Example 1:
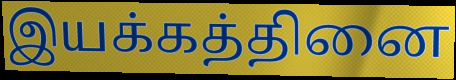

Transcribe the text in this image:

இயக்கத்தினை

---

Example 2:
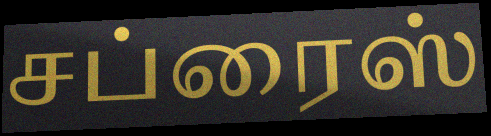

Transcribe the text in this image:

சப்ரைஸ்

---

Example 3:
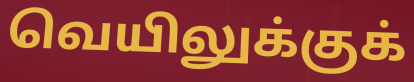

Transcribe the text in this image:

வெயிலுக்குக்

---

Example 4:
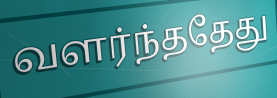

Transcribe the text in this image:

வளர்ந்ததேது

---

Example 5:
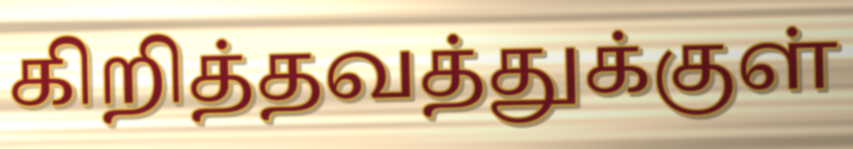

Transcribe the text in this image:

கிறித்தவத்துக்குள்